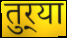
तुर्या